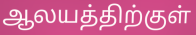
ஆலயத்திற்குள்